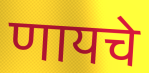
णायचे